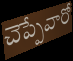
చెప్పేవారో